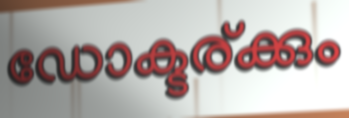
ഡോക്ടര്ക്കും